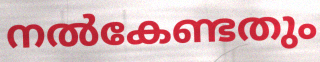
നൽകേണ്ടതും